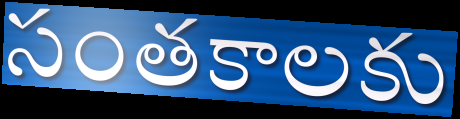
సంతకాలకు